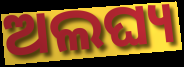
ଅଲଘ୍ୟ